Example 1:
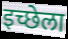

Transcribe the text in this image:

इच्छेला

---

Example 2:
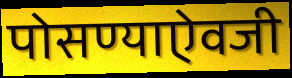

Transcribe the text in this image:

पोसण्याऐवजी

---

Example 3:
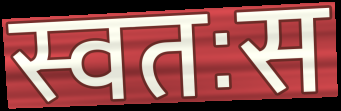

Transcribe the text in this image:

स्वतःस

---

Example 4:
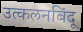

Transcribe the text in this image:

उत्कलनबिंदू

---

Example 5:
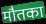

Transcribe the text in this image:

मौतका